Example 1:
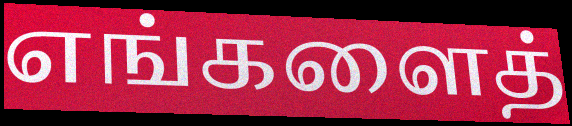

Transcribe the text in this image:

எங்களைத்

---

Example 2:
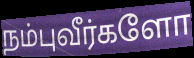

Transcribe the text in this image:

நம்புவீர்களோ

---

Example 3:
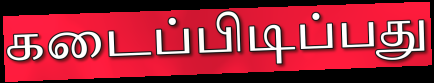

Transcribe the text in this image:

கடைப்பிடிப்பது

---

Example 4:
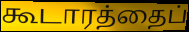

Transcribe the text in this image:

கூடாரத்தைப்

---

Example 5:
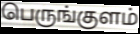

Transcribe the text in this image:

பெருங்குளம்